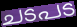
ചടപട